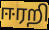
ஈரறி